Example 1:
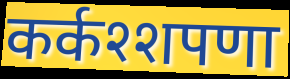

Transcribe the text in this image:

कर्कश्शपणा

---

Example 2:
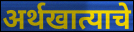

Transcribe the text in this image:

अर्थखात्याचे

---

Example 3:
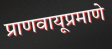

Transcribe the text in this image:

प्राणवायूप्रमाणे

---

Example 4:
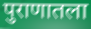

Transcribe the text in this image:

पुराणातला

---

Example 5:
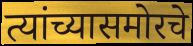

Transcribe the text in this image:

त्यांच्यासमोरचे